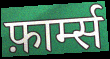
फ़ार्म्स